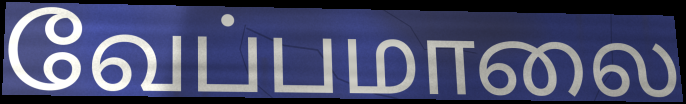
வேப்பமாலை